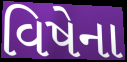
વિષેના